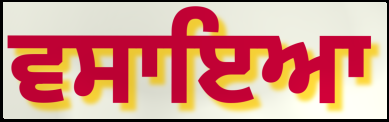
ਵਸਾਇਆ